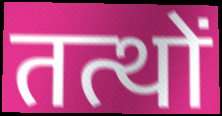
तत्थों